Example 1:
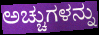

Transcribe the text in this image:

ಅಚ್ಚುಗಳನ್ನು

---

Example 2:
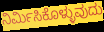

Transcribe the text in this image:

ನಿರ್ಮಿಸಿಕೊಳ್ಳುವುದು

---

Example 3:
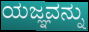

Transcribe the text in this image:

ಯಜ್ಞವನ್ನು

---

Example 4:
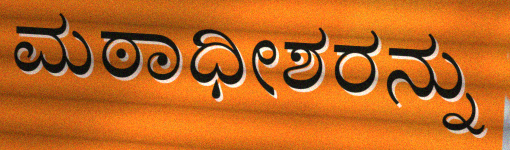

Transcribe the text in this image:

ಮಠಾಧೀಶರನ್ನು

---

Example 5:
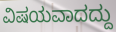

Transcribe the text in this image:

ವಿಷಯವಾದದ್ದು